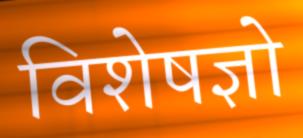
विशेषज्ञो